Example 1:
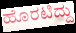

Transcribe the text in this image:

ಹೊರಟಿದ್ದು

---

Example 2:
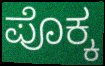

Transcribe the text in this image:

ಪೊಕ್ಕ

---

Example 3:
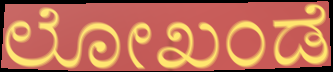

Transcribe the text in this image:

ಲೋಖಂಡೆ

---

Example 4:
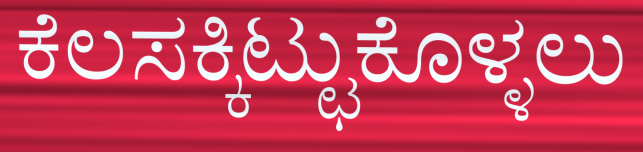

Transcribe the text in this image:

ಕೆಲಸಕ್ಕಿಟ್ಟುಕೊಳ್ಳಲು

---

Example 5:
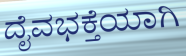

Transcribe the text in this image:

ದೈವಭಕ್ತೆಯಾಗಿ